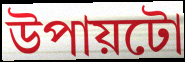
উপায়টো